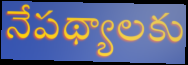
నేపథ్యాలకు